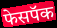
फेसपॅक